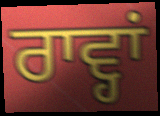
ਰਾਵ੍ਹਾਂ